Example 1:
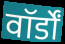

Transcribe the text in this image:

वॉर्डों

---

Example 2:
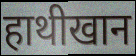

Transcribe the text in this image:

हाथीखान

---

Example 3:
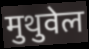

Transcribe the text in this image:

मुथुवेल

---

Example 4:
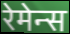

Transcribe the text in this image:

रेमेन्स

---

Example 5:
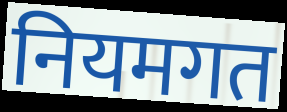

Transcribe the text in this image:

नियमगत